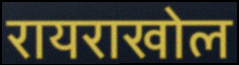
रायराखोल